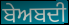
ਬੇਅਬਦੀ